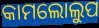
କାମଲୋଲୁପ